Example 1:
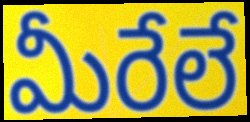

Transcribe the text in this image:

మీరేలే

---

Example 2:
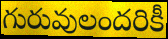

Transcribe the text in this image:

గురువులందరికీ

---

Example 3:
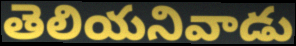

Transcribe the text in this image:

తెలియనివాడు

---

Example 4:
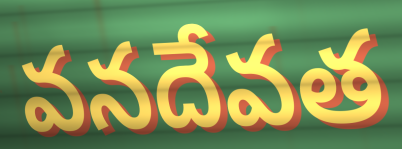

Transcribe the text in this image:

వనదేవత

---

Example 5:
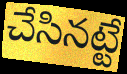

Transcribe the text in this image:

చేసినట్టే